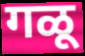
गळू